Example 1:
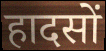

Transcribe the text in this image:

हादसों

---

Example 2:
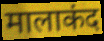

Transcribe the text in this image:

मालाकंद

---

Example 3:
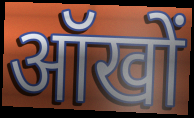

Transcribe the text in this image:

ऑखों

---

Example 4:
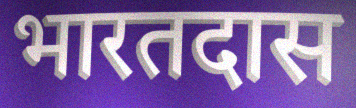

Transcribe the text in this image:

भारतदास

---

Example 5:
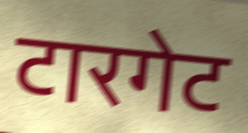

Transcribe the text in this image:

टारगेट